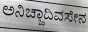
ಅನಿಚ್ಚಾದಿವಸೇನ